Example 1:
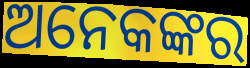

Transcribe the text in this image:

ଅନେକଙ୍କର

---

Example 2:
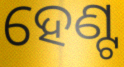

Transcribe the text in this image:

ହେଣ୍ଟ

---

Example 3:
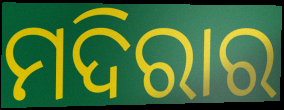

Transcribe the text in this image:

ମଦିରାର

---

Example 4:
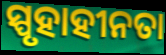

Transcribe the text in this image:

ସ୍ପୃହାହୀନତା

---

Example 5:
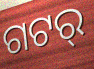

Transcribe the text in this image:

ଗଟର୍